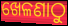
ଖେଳଣାଠୁ